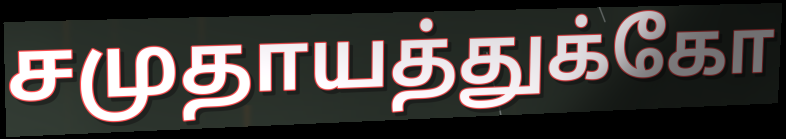
சமுதாயத்துக்கோ